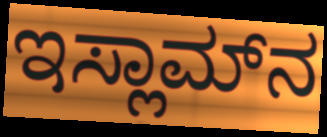
ಇಸ್ಲಾಮ್‌ನ